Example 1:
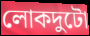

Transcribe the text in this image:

লোকদুটো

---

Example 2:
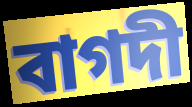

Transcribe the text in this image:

বাগদী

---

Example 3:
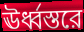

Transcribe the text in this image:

ঊর্ধ্বস্তরে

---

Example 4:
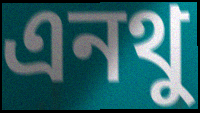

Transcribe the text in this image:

এনথু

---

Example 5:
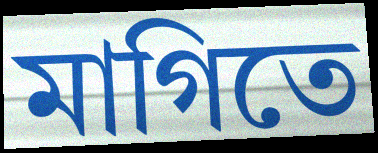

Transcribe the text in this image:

মাগিতে